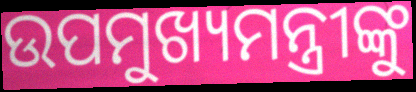
ଉପମୁଖ୍ୟମନ୍ତ୍ରୀଙ୍କୁ